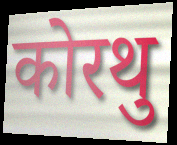
कोरथु